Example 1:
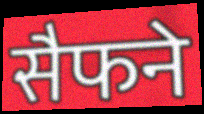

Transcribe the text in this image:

सैफने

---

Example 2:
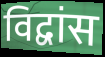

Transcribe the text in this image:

विद्वांस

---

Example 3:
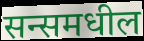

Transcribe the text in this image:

सन्समधील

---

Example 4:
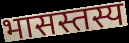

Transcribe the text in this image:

भासस्तस्य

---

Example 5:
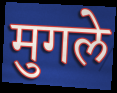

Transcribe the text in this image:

मुगले